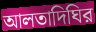
আলতাদিঘির